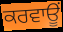
ਕਰਵਾਊਂ